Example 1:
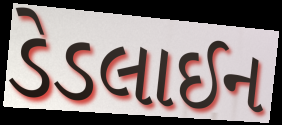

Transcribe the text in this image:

ડેડલાઈન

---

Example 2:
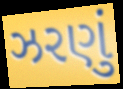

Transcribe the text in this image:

ઝરણું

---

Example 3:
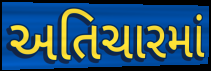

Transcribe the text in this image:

અતિચારમાં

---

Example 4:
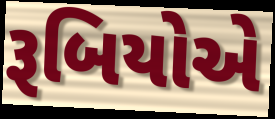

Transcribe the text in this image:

રૂબિયોએ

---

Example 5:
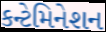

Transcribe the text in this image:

કન્ટેમિનેશન